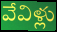
వేవిళ్లు